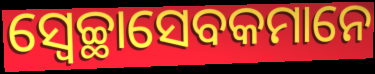
ସ୍ୱେଚ୍ଛାସେବକମାନେ